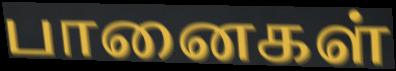
பானைகள்